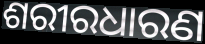
ଶରୀରଧାରଣ